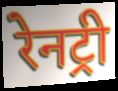
रेनट्री